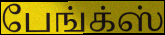
பேங்க்ஸ்